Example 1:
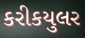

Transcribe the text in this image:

કરીકયુલર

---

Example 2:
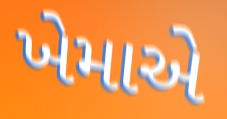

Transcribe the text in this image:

ખેમાએ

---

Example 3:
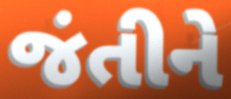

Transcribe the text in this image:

જંતીને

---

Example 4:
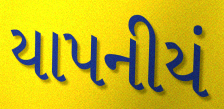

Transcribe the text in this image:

યાપનીયં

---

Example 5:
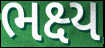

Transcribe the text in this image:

ભક્ષ્ય